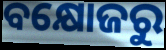
ବକ୍ଷୋଜରୁ